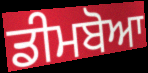
ਡੀਮਬੋਆ